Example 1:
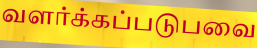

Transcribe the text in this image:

வளர்க்கப்படுபவை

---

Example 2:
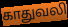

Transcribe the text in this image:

காதுவலி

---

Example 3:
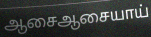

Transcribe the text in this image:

ஆசைஆசையாய்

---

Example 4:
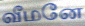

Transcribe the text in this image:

வீமனே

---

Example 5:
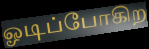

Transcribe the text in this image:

ஓடிப்போகிற